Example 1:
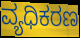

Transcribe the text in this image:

ವ್ಯಧಿಕರಣ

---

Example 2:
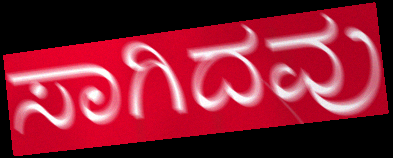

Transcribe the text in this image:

ಸಾಗಿದವು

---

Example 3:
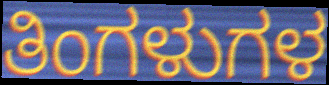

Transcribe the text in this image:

ತಿಂಗಳುಗಳ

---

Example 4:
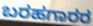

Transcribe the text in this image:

ಬರಹಗಾರರ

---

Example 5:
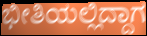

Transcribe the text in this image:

ಭೀತಿಯಲ್ಲಿದ್ದಾಗ